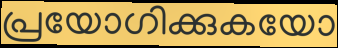
പ്രയോഗിക്കുകയോ